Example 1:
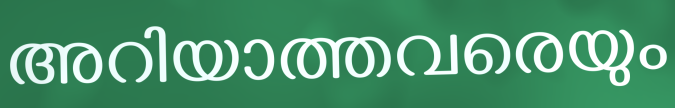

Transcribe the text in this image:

അറിയാത്തവരെയും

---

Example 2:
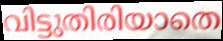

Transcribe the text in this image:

വിട്ടുതിരിയാതെ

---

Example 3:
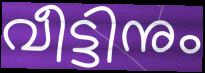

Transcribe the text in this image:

വീട്ടിനും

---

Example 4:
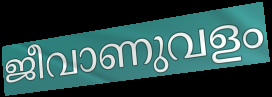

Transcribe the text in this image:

ജീവാണുവളം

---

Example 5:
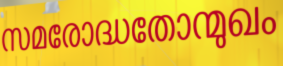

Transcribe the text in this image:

സമരോദ്ധതോന്മുഖം